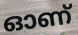
ഓണ്